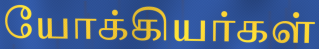
யோக்கியர்கள்